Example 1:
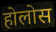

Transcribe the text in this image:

होलोस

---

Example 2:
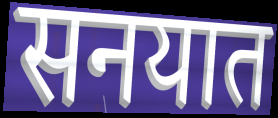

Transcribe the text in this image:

सनयात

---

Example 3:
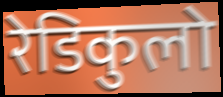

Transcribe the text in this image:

रेडिकुलो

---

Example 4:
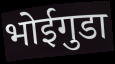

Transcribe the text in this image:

भोईगुडा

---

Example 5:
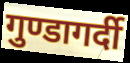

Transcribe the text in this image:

गुण्डागर्दी